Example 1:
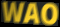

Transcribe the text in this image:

WAO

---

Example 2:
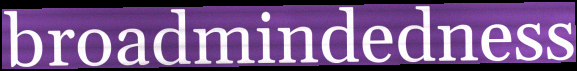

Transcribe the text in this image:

broadmindedness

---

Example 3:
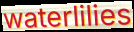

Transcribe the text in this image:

waterlilies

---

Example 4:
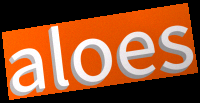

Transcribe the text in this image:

aloes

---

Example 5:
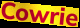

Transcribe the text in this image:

Cowrie